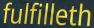
fulfilleth